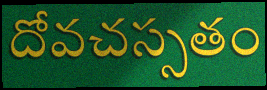
దోవచస్సతం